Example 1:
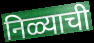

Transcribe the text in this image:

निळ्याची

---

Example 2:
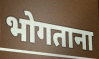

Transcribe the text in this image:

भोगताना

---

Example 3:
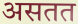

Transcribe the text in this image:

असतत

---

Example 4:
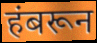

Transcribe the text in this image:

हंबरून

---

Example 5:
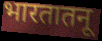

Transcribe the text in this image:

भारतातनू